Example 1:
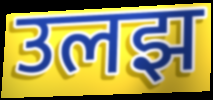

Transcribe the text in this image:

उलझ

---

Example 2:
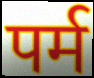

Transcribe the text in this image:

पर्म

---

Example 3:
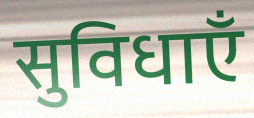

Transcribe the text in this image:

सुविधाएँ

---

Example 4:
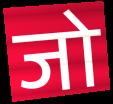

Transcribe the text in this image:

जो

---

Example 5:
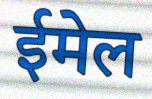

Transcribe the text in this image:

ईमेल